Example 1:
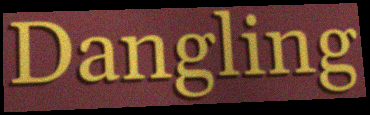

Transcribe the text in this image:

Dangling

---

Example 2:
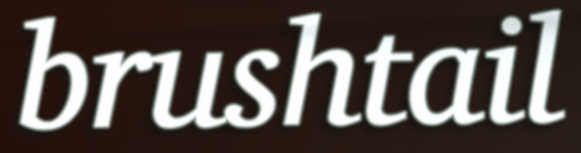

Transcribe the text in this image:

brushtail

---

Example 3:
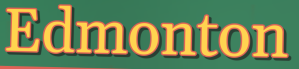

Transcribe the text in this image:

Edmonton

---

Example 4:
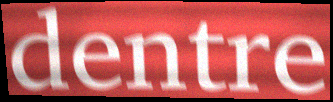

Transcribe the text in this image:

dentre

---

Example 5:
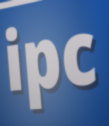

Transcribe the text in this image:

ipc